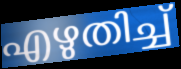
എഴുതിച്ച്